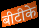
बीटीके